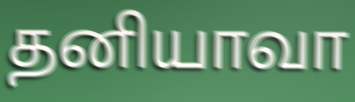
தனியாவா